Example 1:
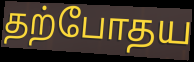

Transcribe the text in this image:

தற்போதய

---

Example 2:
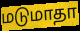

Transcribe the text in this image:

மடுமாதா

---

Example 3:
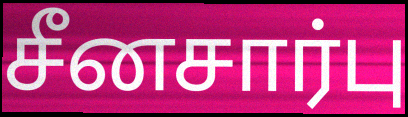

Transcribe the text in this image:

சீனசார்பு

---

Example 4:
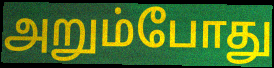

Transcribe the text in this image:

அறும்போது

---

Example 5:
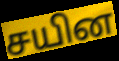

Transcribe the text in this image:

சயின